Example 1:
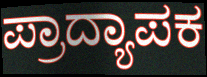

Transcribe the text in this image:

ಪ್ರಾದ್ಯಾಪಕ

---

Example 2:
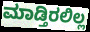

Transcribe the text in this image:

ಮಾಡ್ತಿರಲಿಲ್ಲ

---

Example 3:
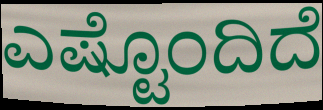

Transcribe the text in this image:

ಎಷ್ಟೊಂದಿದೆ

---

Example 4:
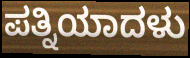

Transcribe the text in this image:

ಪತ್ನಿಯಾದಳು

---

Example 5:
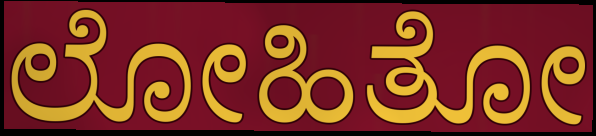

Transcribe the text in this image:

ಲೋಹಿತೋ